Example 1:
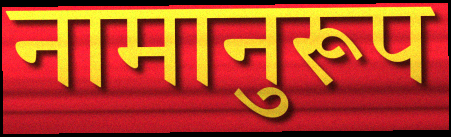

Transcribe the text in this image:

नामानुरूप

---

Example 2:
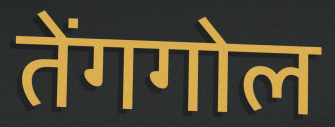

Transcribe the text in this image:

तेंगगोल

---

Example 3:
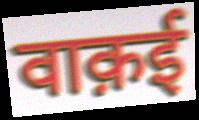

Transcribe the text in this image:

वाक़ई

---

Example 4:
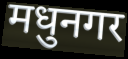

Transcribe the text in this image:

मधुनगर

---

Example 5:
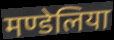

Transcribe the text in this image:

मण्डेलिया